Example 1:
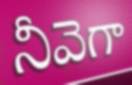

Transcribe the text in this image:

నీవెగా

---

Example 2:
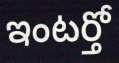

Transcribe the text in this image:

ఇంటర్తో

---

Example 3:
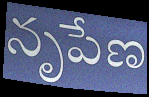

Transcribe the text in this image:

నృపేణ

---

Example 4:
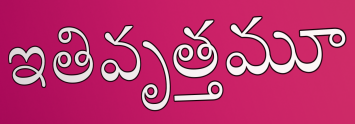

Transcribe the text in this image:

ఇతివృత్తమూ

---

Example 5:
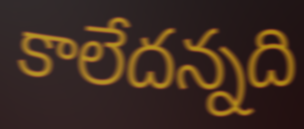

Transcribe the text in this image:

కాలేదన్నది